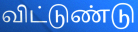
விட்டுண்டு